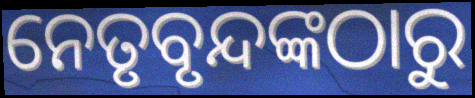
ନେତୃବୃନ୍ଦଙ୍କଠାରୁ